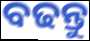
ବଢନ୍ତୁ